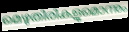
മെഴുതിരികളുമൊന്നും